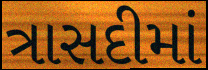
ત્રાસદીમાં